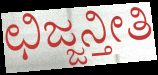
ಛಿಜ್ಜನ್ತೀತಿ